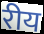
रीय